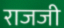
राजजी